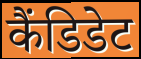
कैंडिडेट